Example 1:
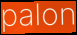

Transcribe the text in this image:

palon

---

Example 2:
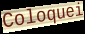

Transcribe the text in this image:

Coloquei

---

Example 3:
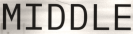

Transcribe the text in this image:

MIDDLE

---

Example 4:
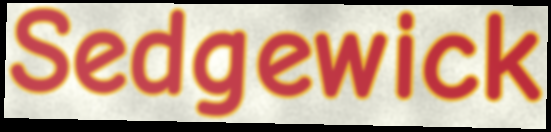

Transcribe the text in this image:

Sedgewick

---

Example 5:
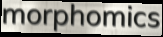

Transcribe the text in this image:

morphomics